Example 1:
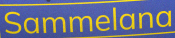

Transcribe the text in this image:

Sammelana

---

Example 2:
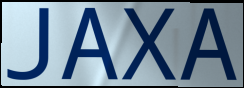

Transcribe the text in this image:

JAXA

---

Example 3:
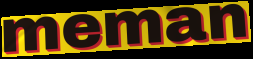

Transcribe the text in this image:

meman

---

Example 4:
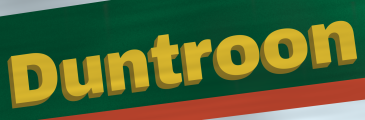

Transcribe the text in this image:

Duntroon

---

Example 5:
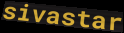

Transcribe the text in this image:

sivastar